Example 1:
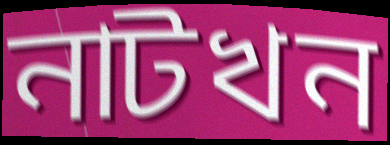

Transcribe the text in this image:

নাটখন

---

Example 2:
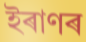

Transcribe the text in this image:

ইৰাণৰ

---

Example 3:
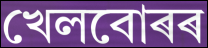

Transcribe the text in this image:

খেলবোৰৰ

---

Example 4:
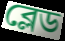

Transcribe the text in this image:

ব্লেড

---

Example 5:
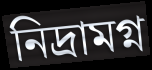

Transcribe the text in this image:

নিদ্ৰামগ্ন